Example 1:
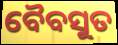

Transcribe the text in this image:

ବୈବସୁତ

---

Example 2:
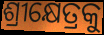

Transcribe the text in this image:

ଶ୍ରୀକ୍ଷେତ୍ରକୁ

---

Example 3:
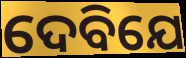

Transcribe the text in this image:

ଦେବିଯେ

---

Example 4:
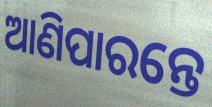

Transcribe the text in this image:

ଆଣିପାରନ୍ତେ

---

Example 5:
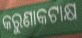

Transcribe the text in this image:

କରୁଣାକଟାକ୍ଷ